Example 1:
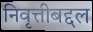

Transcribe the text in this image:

निवृत्तीबद्दल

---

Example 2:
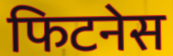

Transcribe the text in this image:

फिटनेस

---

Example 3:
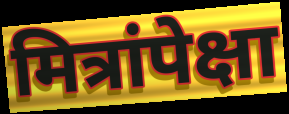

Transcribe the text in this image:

मित्रांपेक्षा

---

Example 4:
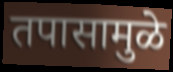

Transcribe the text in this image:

तपासामुळे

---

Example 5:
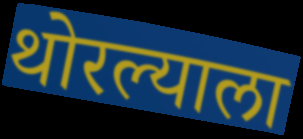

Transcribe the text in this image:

थोरल्याला